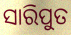
ସାରିପୁତ